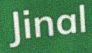
Jinal